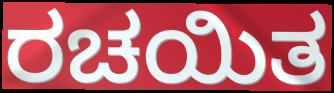
ರಚಯಿತ